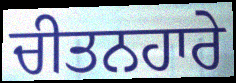
ਚੀਤਨਹਾਰੇ